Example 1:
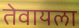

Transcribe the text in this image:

तेवायला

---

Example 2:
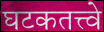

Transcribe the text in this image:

घटकतत्त्वे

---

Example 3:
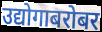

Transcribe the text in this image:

उद्योगाबरोबर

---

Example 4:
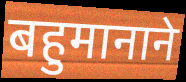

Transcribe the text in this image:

बहुमानाने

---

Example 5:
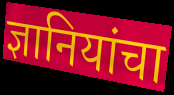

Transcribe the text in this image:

ज्ञानियांचा